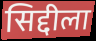
सिद्दीला